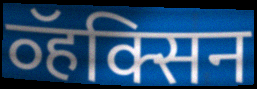
व्हॅक्सिन